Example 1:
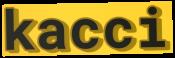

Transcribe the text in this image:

kacci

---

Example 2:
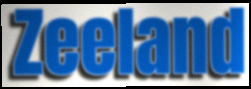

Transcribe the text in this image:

Zeeland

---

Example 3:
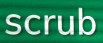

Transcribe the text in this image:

scrub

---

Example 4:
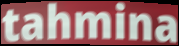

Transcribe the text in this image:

tahmina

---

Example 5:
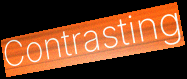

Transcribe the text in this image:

Contrasting